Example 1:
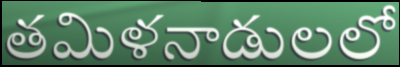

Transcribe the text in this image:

తమిళనాడులలో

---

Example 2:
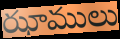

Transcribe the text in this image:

ఝాములు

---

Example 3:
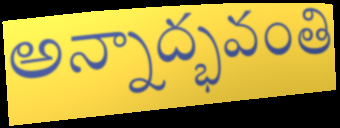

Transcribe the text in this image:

అన్నాద్భవంతి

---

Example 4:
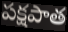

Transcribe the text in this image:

పక్షపాత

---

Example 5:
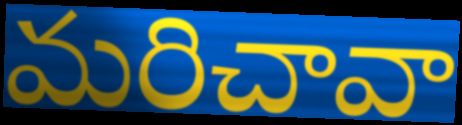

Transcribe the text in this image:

మరిచావా